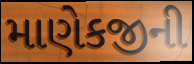
માણેકજીની